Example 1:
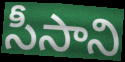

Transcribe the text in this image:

సీసాని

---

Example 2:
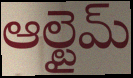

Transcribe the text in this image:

ఆల్టైమ్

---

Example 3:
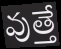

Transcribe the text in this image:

వుత్తే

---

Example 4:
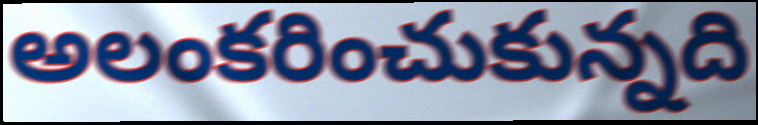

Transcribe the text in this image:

అలంకరించుకున్నది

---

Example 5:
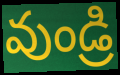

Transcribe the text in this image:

వుండ్రి